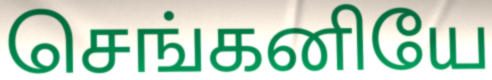
செங்கனியே